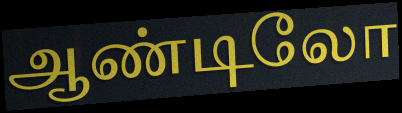
ஆண்டிலோ